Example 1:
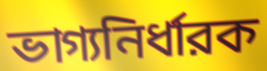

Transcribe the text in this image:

ভাগ্যনির্ধারক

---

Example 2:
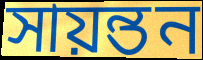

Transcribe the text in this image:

সায়ন্তন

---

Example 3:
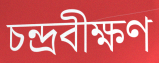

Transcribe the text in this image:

চন্দ্রবীক্ষণ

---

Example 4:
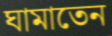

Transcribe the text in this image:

ঘামাতেন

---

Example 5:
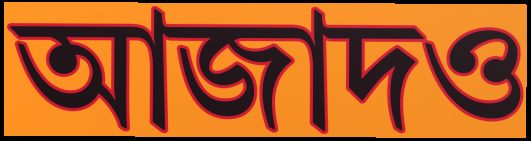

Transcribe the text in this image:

আজাদও